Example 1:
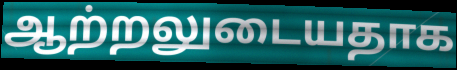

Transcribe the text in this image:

ஆற்றலுடையதாக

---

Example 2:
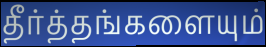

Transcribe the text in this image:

தீர்த்தங்களையும்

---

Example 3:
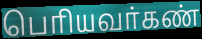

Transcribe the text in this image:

பெரியவர்கண்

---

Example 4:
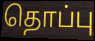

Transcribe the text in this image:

தொப்பு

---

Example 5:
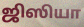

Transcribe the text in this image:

ஜிஸியா